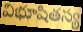
విభూషితస్య